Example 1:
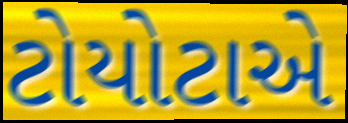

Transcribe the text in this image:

ટોયોટાએ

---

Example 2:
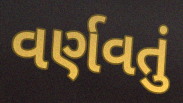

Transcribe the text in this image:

વર્ણવતું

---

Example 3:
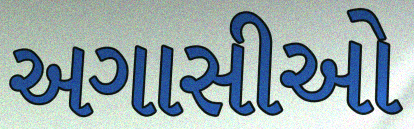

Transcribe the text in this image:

અગાસીઓ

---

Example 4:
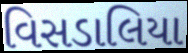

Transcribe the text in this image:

વિસડાલિયા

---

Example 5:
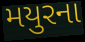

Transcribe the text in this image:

મયુરના